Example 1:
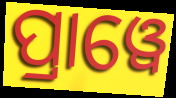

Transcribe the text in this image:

ପ୍ରାୱେ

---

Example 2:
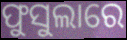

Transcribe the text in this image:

ଫୁସୁଲାରେ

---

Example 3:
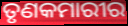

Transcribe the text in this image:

ତୃଣକମାରୀର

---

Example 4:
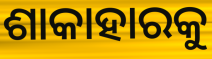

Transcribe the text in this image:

ଶାକାହାରକୁ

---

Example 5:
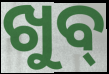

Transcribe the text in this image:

ଖୁବ୍